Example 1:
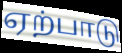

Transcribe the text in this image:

ஏற்பாடு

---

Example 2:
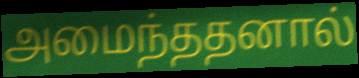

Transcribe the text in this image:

அமைந்ததனால்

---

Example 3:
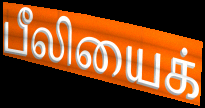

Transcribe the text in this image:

பீலியைக்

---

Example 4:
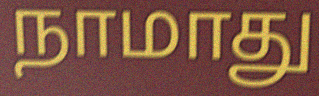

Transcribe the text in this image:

நாமாது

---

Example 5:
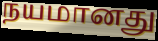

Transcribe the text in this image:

நயமானது